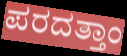
ಪರದತ್ತಾಂ